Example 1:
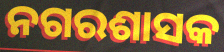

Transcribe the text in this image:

ନଗରଶାସକ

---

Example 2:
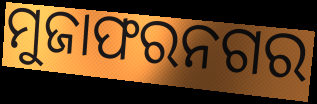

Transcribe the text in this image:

ମୁଜାଫରନଗର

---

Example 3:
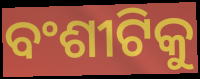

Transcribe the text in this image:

ବଂଶୀଟିକୁ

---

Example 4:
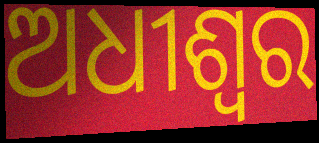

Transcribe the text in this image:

ଅଧୀଶ୍ୱର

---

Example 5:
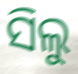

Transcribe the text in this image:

ସିଲୁ